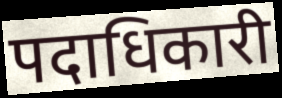
पदाधिकारी